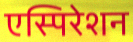
एस्पिरेशन